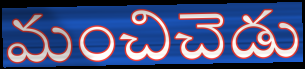
మంచిచెడు